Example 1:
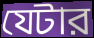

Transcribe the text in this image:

যেটার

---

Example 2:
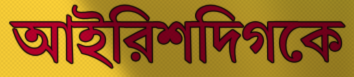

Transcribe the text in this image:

আইরিশদিগকে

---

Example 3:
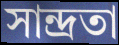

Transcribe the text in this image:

সান্দ্রতা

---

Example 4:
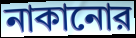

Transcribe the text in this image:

নাকানোর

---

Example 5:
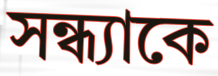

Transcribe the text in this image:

সন্ধ্যাকে